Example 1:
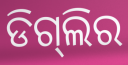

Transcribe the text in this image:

ଡିଗ୍‌ଲିର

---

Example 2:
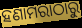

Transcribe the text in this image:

ହଣାମରାଠାରୁ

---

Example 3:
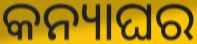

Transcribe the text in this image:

କନ୍ୟାଘର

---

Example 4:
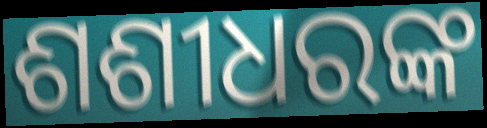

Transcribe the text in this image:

ଶଶୀଧରଙ୍କ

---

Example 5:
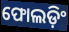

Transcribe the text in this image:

ଫୋଲଡ଼ିଂ